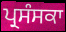
ਪ੍ਰਸੰਸਕਾ